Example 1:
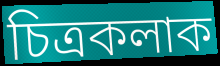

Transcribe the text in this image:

চিত্ৰকলাক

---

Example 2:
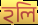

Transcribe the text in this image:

হলি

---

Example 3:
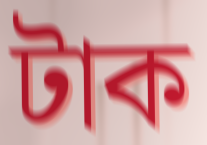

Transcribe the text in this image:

টাক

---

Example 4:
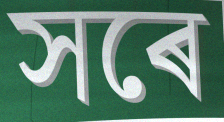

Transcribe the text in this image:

সৰে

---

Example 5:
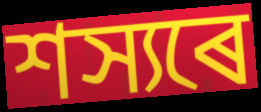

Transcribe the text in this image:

শস্যৰে